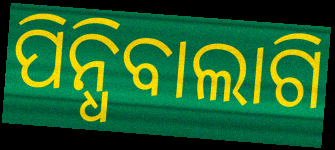
ପିନ୍ଧିବାଲାଗି